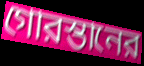
গোরস্তানের